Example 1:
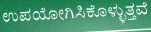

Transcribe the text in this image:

ಉಪಯೋಗಿಸಿಕೊಳ್ಳುತ್ತವೆ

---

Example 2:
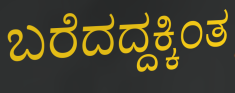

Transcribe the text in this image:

ಬರೆದದ್ದಕ್ಕಿಂತ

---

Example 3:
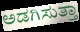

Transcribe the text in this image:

ಅಡಗಿಸುತ್ತಾ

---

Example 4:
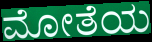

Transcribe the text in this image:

ಮೋತೆಯ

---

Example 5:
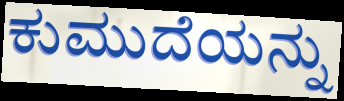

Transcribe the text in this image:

ಕುಮುದೆಯನ್ನು